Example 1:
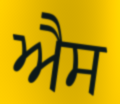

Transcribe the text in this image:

ਐਸ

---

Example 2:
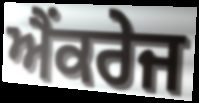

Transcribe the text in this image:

ਐਂਕਰੇਜ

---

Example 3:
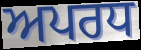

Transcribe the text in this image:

ਅਪਰਧ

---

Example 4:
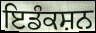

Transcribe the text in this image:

ਇਡੰਕਸ਼ਨ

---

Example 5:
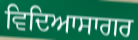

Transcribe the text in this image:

ਵਿਦਿਆਸਾਗਰ